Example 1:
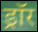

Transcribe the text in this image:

ड्रॉर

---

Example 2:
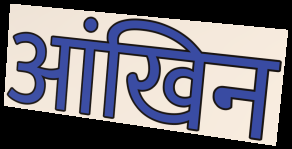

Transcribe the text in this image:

आंखिन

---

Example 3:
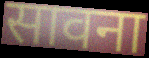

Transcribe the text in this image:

सावना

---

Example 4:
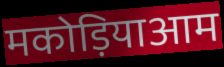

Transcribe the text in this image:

मकोड़ियाआम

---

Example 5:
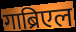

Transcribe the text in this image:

गाब्रिएल